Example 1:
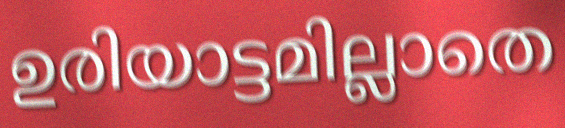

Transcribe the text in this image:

ഉരിയാട്ടമില്ലാതെ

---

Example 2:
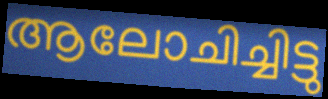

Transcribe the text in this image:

ആലോചിച്ചിട്ടു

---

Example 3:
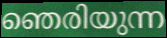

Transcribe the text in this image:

ഞെരിയുന്ന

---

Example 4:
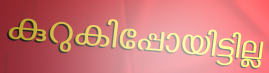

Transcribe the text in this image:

കുറുകിപ്പോയിട്ടില്ല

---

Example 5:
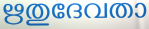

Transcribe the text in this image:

ഋതുദേവതാ